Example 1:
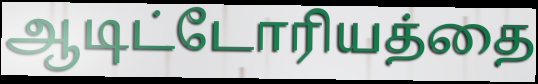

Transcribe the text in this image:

ஆடிட்டோரியத்தை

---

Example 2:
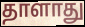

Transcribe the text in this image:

தாளாது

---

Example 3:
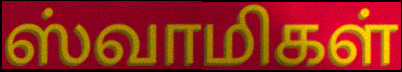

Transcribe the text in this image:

ஸ்வாமிகள்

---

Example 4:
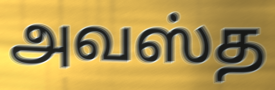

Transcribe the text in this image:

அவஸ்த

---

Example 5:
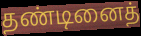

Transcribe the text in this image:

தண்டினைத்